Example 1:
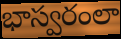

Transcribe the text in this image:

భాస్వరంలా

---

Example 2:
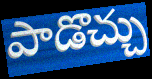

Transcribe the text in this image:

పాడొచ్చు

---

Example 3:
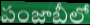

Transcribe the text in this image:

పంజాబీలో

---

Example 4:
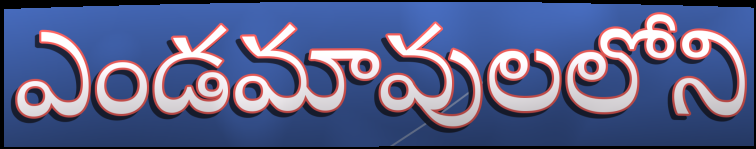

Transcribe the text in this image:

ఎండమావులలోని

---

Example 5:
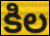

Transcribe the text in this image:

కిల